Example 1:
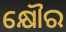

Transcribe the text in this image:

କ୍ଷୌର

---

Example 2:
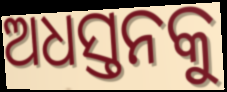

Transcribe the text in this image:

ଅଧସ୍ତନକୁ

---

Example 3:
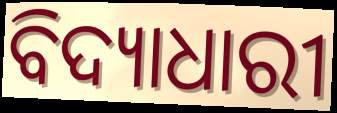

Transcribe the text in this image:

ବିଦ୍ୟାଧାରୀ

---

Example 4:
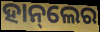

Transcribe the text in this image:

ହାନ୍‌ଲେର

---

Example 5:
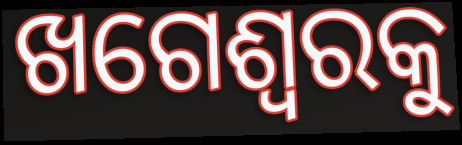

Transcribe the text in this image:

ଖଗେଶ୍ୱରକୁ